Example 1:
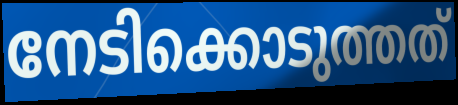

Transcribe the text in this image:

നേടിക്കൊടുത്തത്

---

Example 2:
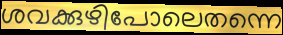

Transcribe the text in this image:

ശവക്കുഴിപോലെതന്നെ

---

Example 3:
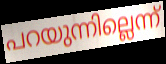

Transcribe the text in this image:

പറയുന്നില്ലെന്ന്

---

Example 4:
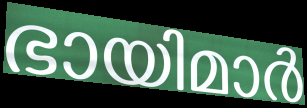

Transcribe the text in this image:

ഭായിമാർ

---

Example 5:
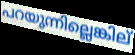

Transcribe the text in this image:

പറയുന്നില്ലെങ്കില്